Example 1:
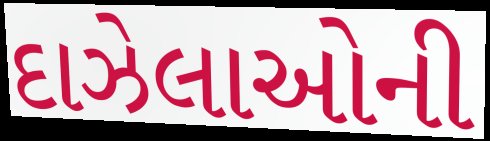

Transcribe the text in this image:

દાઝેલાઓની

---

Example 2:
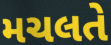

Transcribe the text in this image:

મચલતે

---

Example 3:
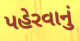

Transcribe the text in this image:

પહેરવાનું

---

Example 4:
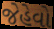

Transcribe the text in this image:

જેહેવો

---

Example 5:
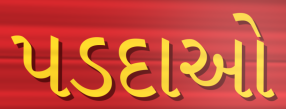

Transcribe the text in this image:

પડદાઓ